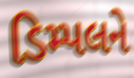
ડિમ્પલને